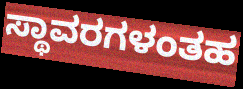
ಸ್ಥಾವರಗಳಂತಹ